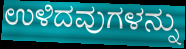
ಉಳಿದವುಗಳನ್ನು